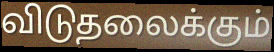
விடுதலைக்கும்